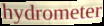
hydrometer